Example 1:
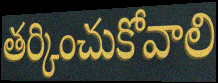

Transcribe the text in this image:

తర్కించుకోవాలి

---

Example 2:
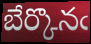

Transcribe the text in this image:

బేర్కొనఁ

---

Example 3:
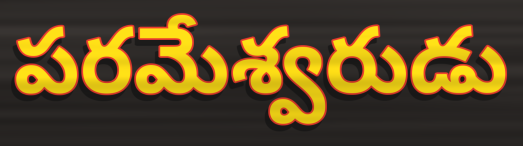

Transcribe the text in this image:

పరమేశ్వరుడు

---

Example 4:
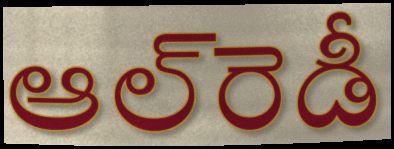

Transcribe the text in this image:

ఆల్‌రెడీ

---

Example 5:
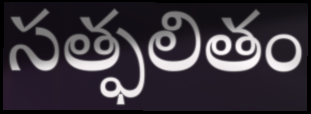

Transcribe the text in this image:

సత్ఫలితం